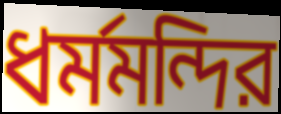
ধর্মমন্দির